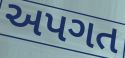
અપગત